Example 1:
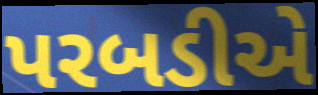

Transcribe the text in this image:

પરબડીએ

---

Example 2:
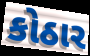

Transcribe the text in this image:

કોઠાર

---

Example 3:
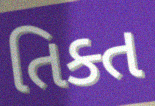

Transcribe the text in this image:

તિક્ત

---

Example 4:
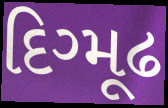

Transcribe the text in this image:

દિગ્મૂઢ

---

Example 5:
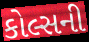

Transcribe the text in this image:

કોલ્સની